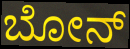
ಬೋನ್